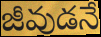
జీవుడనే